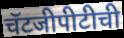
चॅटजीपीटीची